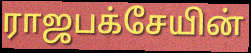
ராஜபக்சேயின்